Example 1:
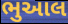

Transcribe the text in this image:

ભુઆલ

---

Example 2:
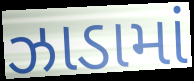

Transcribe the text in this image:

ઝાડામાં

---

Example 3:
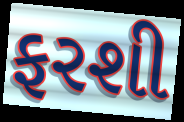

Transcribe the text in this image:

ફરશી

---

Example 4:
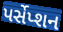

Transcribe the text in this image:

પર્સેપ્શન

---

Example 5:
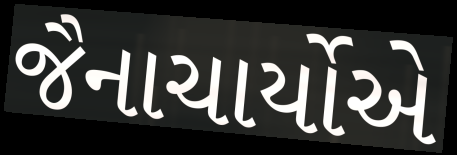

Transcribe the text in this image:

જૈનાચાર્યોએ